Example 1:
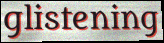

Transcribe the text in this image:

glistening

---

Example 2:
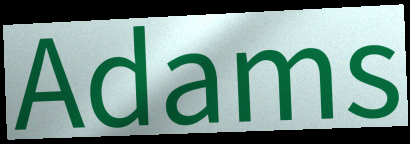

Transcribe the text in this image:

Adams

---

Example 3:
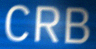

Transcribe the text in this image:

CRB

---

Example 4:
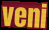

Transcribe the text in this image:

veni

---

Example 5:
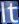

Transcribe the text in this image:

It